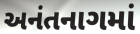
અનંતનાગમાં